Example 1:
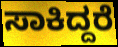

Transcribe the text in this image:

ಸಾಕಿದ್ದರೆ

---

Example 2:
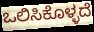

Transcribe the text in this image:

ಒಲಿಸಿಕೊಳ್ಳದೆ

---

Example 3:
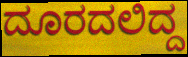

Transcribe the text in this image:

ದೂರದಲಿದ್ದ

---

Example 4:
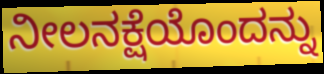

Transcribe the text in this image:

ನೀಲನಕ್ಷೆಯೊಂದನ್ನು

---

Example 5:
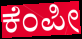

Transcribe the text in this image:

ಕೆಂಪೀ